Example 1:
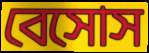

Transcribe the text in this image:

বেসোস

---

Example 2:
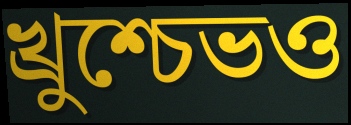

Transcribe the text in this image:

খ্রুশ্চেভও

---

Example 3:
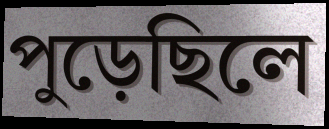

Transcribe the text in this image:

পুড়েছিলে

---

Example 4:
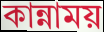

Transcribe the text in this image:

কান্নাময়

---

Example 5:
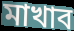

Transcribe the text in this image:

মাখাব